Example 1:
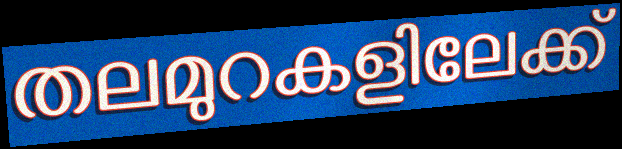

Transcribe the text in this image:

തലമുറകളിലേക്ക്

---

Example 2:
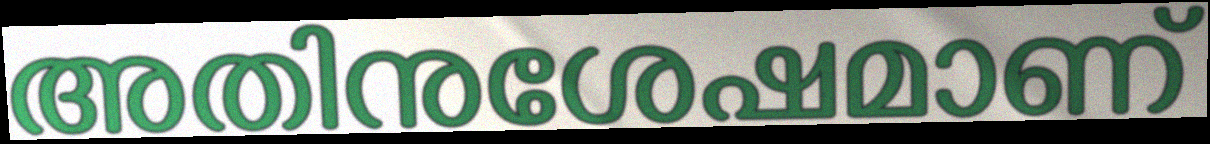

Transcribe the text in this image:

അതിനുശേഷമാണ്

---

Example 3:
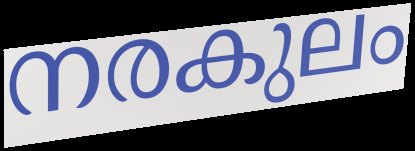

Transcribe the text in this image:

നരകുലം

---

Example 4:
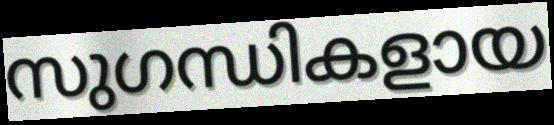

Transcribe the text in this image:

സുഗന്ധികളായ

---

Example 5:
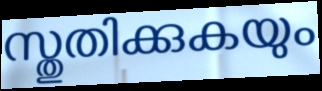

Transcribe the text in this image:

സ്തുതിക്കുകയും